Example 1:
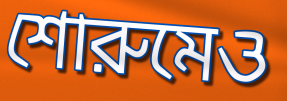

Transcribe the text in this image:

শোরুমেও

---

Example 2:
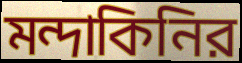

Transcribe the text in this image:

মন্দাকিনির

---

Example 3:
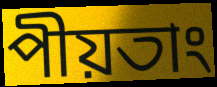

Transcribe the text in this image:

পীয়তাং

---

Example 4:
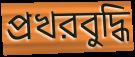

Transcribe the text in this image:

প্রখরবুদ্ধি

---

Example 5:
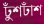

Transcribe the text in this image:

ঢুঁশঢাঁশ